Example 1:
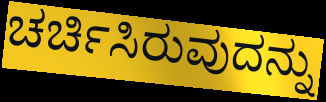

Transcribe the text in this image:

ಚರ್ಚಿಸಿರುವುದನ್ನು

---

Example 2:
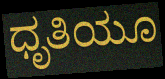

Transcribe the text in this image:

ಧೃತಿಯೂ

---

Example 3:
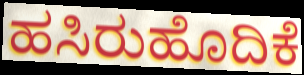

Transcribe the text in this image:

ಹಸಿರುಹೊದಿಕೆ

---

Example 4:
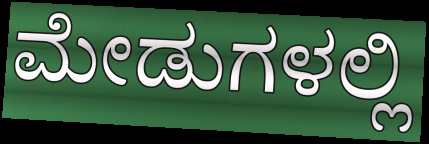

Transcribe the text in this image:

ಮೇಡುಗಳಲ್ಲಿ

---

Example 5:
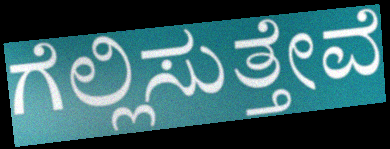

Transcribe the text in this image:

ಗೆಲ್ಲಿಸುತ್ತೇವೆ